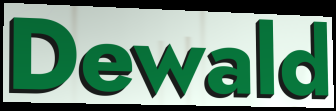
Dewald